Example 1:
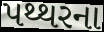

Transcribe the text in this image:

પથ્થરના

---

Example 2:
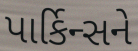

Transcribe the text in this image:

પાર્કિન્સને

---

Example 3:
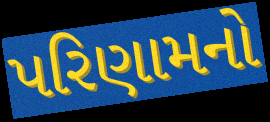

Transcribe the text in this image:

પરિણામનો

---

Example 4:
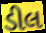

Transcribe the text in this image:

ડીલ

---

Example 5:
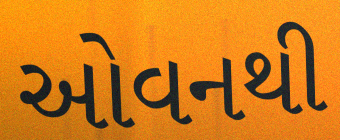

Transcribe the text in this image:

ઓવનથી